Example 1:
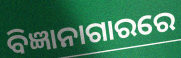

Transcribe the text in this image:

ବିଜ୍ଞାନାଗାରରେ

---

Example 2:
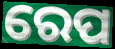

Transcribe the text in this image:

ରେପ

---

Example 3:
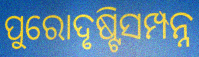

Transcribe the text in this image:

ପୁରୋଦୃଷ୍ଟିସମ୍ପନ୍ନ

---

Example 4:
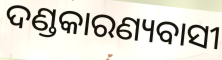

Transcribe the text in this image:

ଦଣ୍ଡକାରଣ୍ୟବାସୀ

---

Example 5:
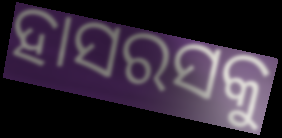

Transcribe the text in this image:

ହାସରସକୁ